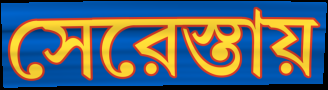
সেরেস্তায়